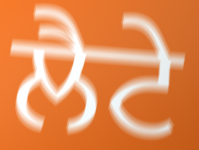
ਲੈਟੇ